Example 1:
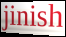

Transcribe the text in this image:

jinish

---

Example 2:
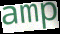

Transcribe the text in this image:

amp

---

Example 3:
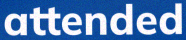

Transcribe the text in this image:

attended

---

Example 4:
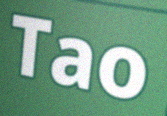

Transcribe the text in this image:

Tao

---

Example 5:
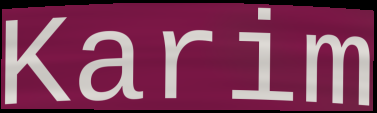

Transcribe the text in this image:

Karim